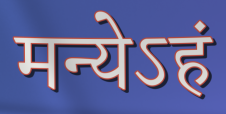
मन्येऽहं